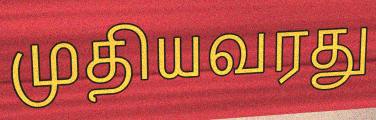
முதியவரது